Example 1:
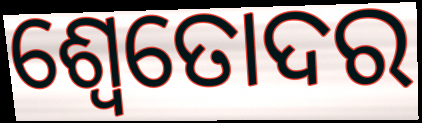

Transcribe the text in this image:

ଶ୍ୱେତୋଦର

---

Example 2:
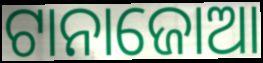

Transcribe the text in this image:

ଟାନାଜୋଆ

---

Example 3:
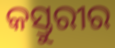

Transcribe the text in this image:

କସ୍ତୁରୀର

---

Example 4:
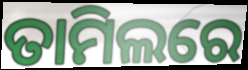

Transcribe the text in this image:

ତାମିଲରେ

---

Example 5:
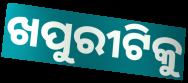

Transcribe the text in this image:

ଖପୁରୀଟିକୁ